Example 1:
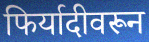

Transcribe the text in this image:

फिर्यादीवरून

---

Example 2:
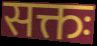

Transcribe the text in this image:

सक्तः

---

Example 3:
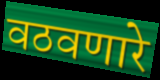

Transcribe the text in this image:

वठवणारे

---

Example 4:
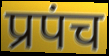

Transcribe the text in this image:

प्रपंच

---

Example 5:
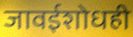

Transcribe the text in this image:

जावईशोधही